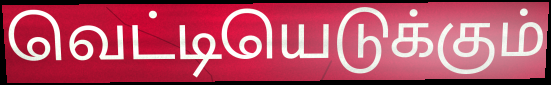
வெட்டியெடுக்கும்